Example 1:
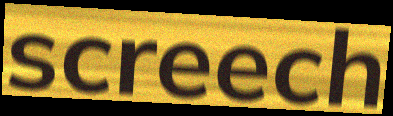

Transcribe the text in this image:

screech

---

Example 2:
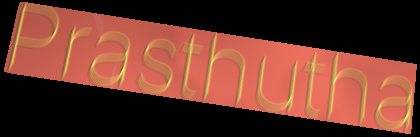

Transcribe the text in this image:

Prasthutha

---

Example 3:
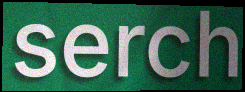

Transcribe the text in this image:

serch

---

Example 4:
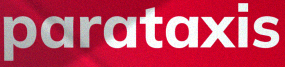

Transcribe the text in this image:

parataxis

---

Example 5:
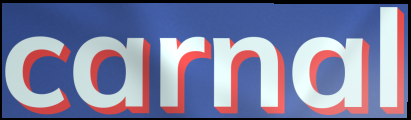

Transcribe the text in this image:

carnal